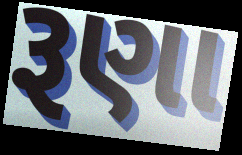
રૂણા